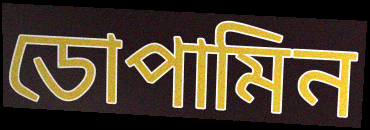
ডোপামিন